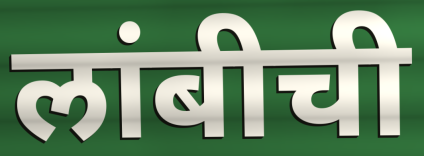
लांबीची